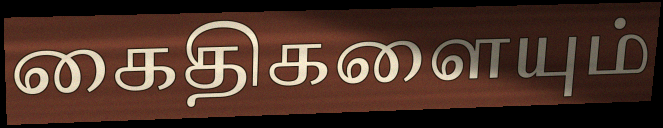
கைதிகளையும்